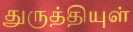
துருத்தியுள்